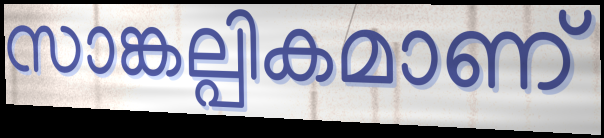
സാങ്കല്പികമാണ്